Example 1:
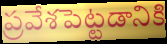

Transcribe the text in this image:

ప్రవేశపెట్టడానికి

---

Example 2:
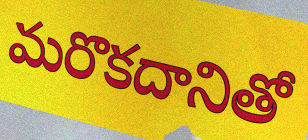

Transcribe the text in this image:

మరొకదానితో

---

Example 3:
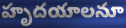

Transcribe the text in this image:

హృదయాలనూ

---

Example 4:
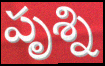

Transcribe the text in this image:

పృశ్ని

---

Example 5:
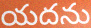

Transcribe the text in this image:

యదను